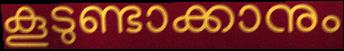
കൂടുണ്ടാക്കാനും